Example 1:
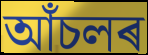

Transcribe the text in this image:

আঁচলৰ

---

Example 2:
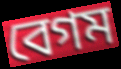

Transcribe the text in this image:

বেগম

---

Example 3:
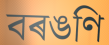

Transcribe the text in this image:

বৰঙণি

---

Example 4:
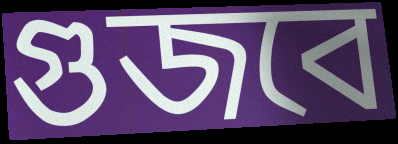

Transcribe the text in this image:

গুজবে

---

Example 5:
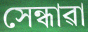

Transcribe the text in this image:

সেন্ধাৱা